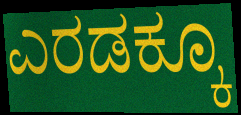
ಎರಡಕ್ಕೂ